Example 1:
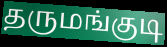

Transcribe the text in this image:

தருமங்குடி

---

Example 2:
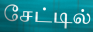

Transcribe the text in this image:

சேட்டில்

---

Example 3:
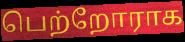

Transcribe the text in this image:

பெற்றோராக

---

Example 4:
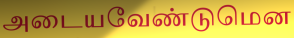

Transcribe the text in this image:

அடையவேண்டுமென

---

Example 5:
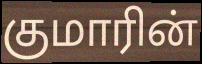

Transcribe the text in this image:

குமாரின்